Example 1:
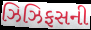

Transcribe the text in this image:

ઝિઝિફસની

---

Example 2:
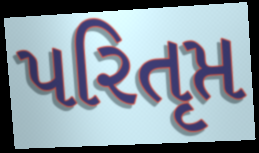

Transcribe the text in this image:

પરિતૃપ્ત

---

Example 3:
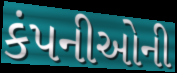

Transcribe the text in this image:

કંપનીઓની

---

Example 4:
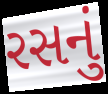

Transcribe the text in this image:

રસનું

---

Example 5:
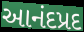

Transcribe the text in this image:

આનંદપ્રદ